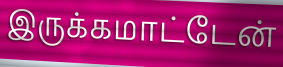
இருக்கமாட்டேன்